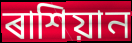
ৰাশিয়ান